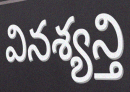
వినశ్యన్తి